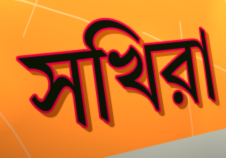
সখিরা